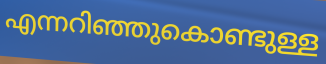
എന്നറിഞ്ഞുകൊണ്ടുള്ള